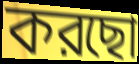
করছো